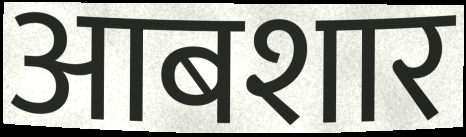
आबशार